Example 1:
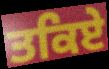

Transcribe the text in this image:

ਤਕਿਏ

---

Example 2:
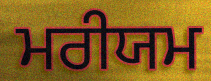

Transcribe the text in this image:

ਮਰੀਯਮ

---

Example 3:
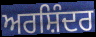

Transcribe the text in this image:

ਅਰਸ਼ਿੰਦਰ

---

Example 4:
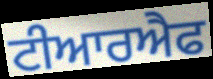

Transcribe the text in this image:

ਟੀਆਰਐਫ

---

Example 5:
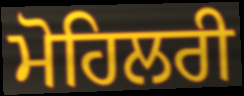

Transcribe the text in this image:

ਮੋਹਿਲਰੀ